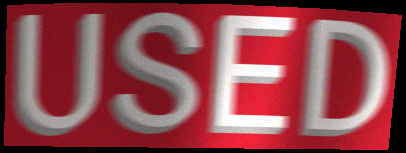
USED